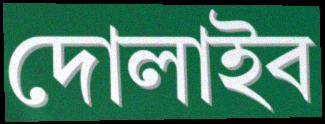
দোলাইব